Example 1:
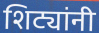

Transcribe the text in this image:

शिट्यांनी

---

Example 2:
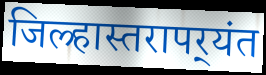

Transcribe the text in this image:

जिल्हास्तरापर्यंत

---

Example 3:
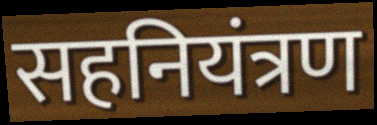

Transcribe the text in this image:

सहनियंत्रण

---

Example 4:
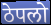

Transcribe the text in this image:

ठेपलो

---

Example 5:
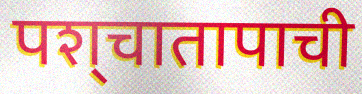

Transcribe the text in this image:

पश्चातापाची